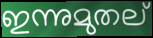
ഇന്നുമുതല്